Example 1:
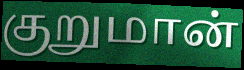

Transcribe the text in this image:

குறுமான்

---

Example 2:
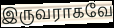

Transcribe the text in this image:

இருவராகவே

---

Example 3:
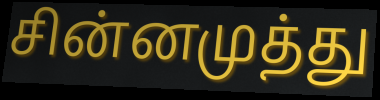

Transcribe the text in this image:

சின்னமுத்து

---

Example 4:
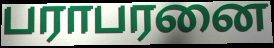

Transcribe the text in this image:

பராபரனை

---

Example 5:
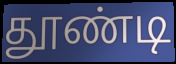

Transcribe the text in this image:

தூண்டி